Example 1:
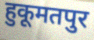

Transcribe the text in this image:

हुकूमतपुर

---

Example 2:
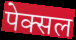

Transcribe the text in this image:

पेक्सल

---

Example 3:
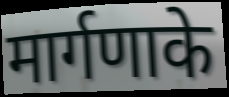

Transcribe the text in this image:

मार्गणाके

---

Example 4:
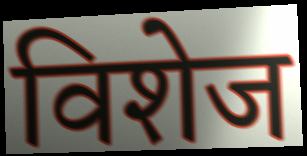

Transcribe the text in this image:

विशेज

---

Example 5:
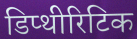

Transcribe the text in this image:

डिप्थीरिटिक